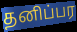
தனிப்பர